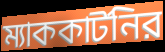
ম্যাককার্টনির